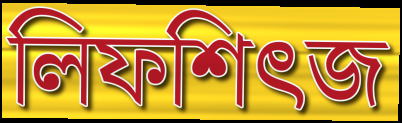
লিফশিৎজ